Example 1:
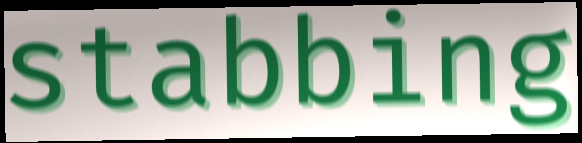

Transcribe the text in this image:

stabbing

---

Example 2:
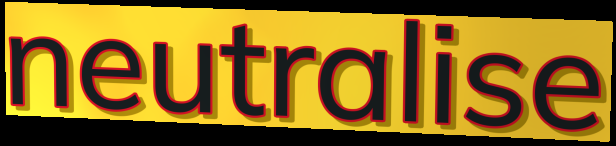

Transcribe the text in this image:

neutralise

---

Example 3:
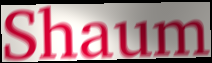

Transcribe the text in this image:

Shaum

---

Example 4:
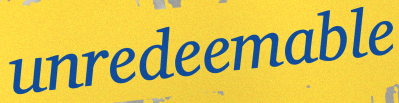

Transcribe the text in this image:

unredeemable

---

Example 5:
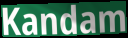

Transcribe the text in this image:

Kandam